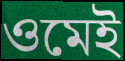
ওমেই